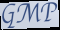
GMP